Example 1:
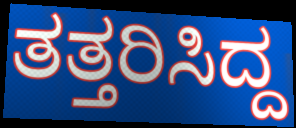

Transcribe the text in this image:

ತತ್ತರಿಸಿದ್ದ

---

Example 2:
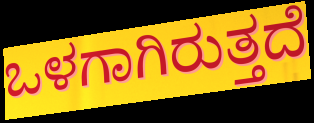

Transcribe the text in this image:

ಒಳಗಾಗಿರುತ್ತದೆ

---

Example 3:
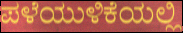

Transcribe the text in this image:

ಪಳೆಯುಳಿಕೆಯಲ್ಲಿ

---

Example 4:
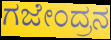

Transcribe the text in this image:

ಗಜೇಂದ್ರನ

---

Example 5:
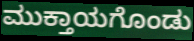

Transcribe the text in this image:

ಮುಕ್ತಾಯಗೊಂಡು